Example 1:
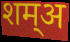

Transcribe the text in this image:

शम्अ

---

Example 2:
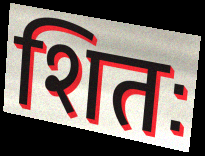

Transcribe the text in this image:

शितः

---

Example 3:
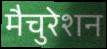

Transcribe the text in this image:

मैचुरेशन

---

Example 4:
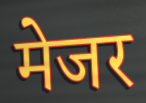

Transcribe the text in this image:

मेजर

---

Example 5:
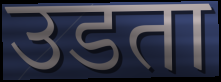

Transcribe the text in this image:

उडता